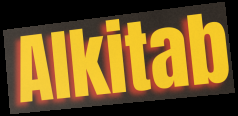
Alkitab